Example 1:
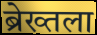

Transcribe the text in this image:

ब्रेख्तला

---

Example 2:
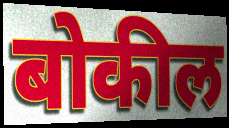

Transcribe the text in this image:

बोकील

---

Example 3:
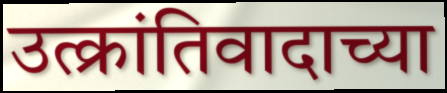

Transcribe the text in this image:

उत्क्रांतिवादाच्या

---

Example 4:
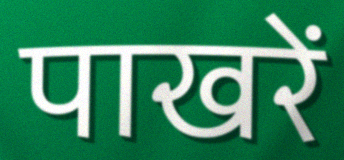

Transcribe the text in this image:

पाखरें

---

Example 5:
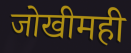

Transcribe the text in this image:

जोखीमही